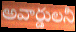
అవార్డులనీ